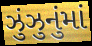
ઝુંઝુનુંમાં